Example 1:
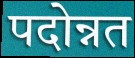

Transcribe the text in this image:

पदोन्नत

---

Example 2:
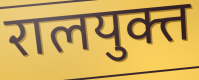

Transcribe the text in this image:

रालयुक्त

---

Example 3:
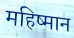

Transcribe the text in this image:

महिष्मान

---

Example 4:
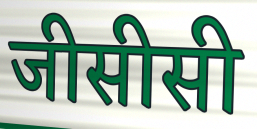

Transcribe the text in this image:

जीसीसी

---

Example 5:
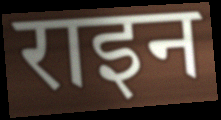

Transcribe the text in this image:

राइन